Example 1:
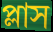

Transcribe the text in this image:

প্লাস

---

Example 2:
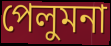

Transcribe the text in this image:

পেলুমনা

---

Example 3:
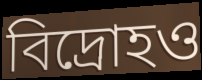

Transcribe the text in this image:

বিদ্রোহও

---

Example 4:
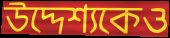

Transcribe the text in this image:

উদ্দেশ্যকেও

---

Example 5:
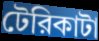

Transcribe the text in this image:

টেরিকাটা